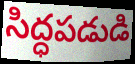
సిద్ధపడుడి